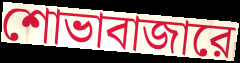
শোভাবাজারে